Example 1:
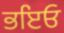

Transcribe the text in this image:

ਭਇਓ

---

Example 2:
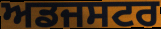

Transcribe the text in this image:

ਅਡਜਸਟਰ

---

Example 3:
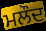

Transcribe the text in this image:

ਮਲੌਦ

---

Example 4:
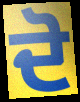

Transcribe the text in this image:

ਦੋ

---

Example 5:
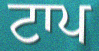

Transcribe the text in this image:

ਟਾਪ